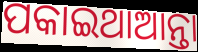
ପକାଇଥାଆନ୍ତା